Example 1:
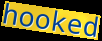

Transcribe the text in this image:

hooked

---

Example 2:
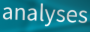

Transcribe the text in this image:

analyses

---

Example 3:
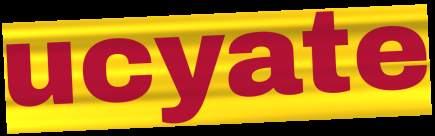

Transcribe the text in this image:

ucyate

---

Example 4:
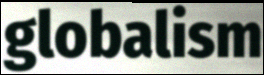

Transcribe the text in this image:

globalism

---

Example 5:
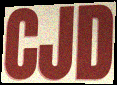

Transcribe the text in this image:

CJD